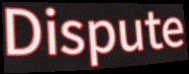
Dispute